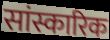
सांस्कारिक